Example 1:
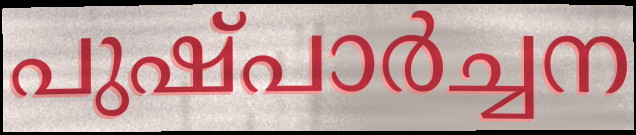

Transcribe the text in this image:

പുഷ്പാർച്ചന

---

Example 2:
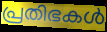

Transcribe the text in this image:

പ്രതിഭകൾ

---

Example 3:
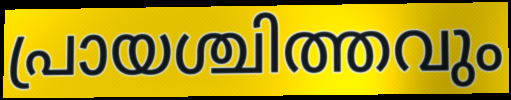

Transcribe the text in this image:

പ്രായശ്ചിത്തവും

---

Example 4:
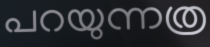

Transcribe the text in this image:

പറയുന്നത്ര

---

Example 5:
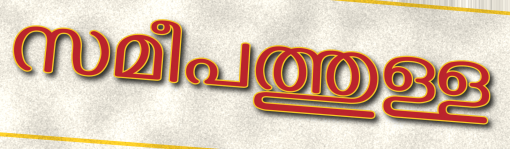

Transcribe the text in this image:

സമീപത്തുള്ള